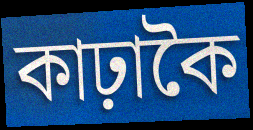
কাঢ়াকৈ